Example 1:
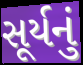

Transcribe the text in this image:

સૂર્યનું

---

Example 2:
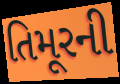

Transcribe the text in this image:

તિમૂરની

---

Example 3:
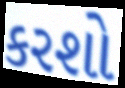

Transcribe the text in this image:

કરશો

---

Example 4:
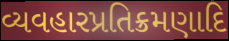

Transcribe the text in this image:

વ્યવહારપ્રતિક્રમણાદિ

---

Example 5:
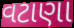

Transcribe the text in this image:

વટાણા